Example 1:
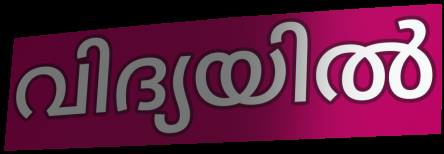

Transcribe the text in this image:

വിദ്യയിൽ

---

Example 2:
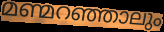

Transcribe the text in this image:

മണ്മറഞ്ഞാലും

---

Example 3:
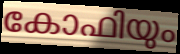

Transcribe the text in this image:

കോഫിയും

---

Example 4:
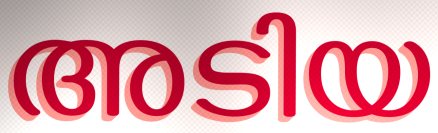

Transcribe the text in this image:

അടിയ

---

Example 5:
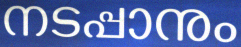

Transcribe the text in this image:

നടപ്പാനും